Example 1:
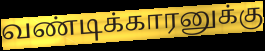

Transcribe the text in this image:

வண்டிக்காரனுக்கு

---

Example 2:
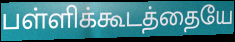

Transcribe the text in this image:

பள்ளிக்கூடத்தையே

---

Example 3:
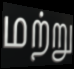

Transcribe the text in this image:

மற்று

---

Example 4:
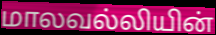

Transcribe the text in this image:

மாலவல்லியின்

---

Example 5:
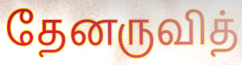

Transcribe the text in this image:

தேனருவித்